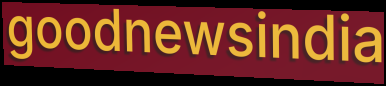
goodnewsindia